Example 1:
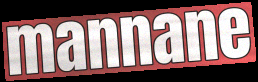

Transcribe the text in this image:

mannane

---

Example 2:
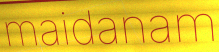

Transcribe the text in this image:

maidanam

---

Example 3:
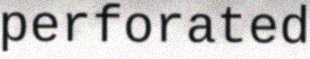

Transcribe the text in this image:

perforated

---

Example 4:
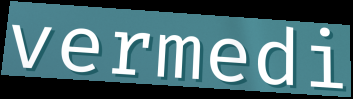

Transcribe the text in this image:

vermedi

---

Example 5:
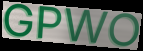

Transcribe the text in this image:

GPWO